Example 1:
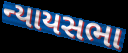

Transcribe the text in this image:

ન્યાયસભા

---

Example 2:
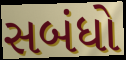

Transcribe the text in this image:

સબંધો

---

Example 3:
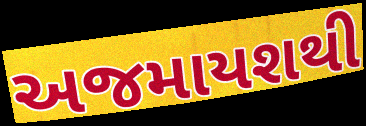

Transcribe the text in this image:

અજમાયશથી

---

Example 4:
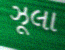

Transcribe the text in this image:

ઝૂલા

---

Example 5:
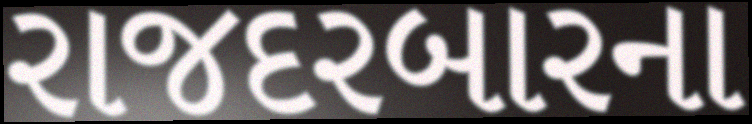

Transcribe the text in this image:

રાજદરબારના